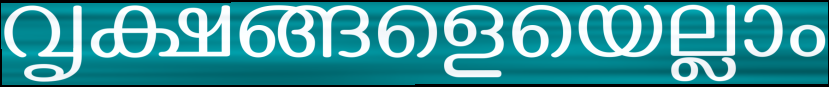
വൃക്ഷങ്ങളെയെല്ലാം